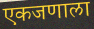
एकजणाला